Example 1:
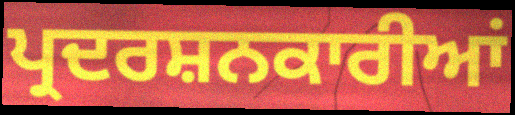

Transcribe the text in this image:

ਪ੍ਰਦਰਸ਼ਨਕਾਰੀਆਂ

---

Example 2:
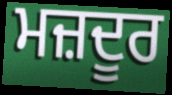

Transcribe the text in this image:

ਮਜ਼ਦੂਰ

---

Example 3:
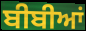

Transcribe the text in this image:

ਬੀਬੀਆਂ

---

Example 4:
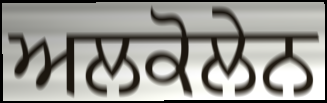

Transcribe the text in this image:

ਅਲਕੋਲੇਨ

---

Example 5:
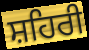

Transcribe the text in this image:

ਸ਼ਹਿਰੀ